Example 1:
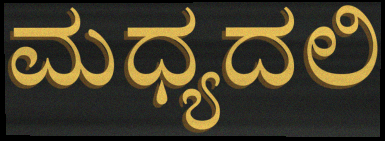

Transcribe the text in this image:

ಮಧ್ಯದಲಿ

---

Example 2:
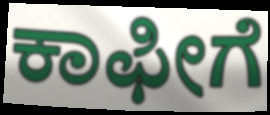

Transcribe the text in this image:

ಕಾಫೀಗೆ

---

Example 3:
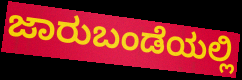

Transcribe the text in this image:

ಜಾರುಬಂಡೆಯಲ್ಲಿ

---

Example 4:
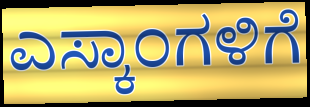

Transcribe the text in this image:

ಎಸ್ಕಾಂಗಳಿಗೆ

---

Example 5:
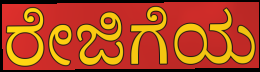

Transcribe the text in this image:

ರೇಜಿಗೆಯ